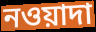
নওয়াদা